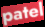
patel